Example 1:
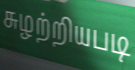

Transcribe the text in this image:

சுழற்றியபடி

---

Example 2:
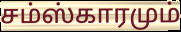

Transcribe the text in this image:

சம்ஸ்காரமும்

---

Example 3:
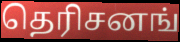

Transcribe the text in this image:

தெரிசனங்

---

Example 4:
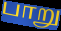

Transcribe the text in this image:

பாறு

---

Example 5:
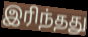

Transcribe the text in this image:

இரிந்தது